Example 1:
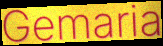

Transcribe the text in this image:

Gemaria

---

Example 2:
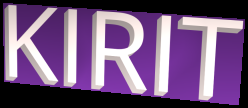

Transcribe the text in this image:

KIRIT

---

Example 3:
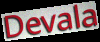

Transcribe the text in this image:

Devala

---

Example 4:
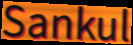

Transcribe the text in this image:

Sankul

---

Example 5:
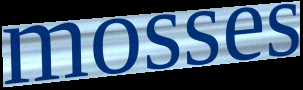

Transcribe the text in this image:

mosses